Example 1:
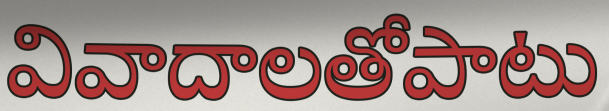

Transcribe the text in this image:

వివాదాలతోపాటు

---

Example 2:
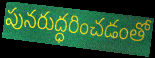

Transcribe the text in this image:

పునరుద్ధరించడంతో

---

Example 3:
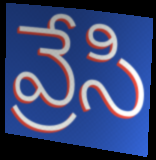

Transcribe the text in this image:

వ్రేసి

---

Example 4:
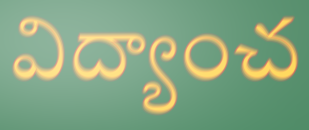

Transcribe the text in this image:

విద్యాంచ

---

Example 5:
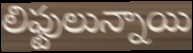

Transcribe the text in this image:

లిఫ్టులున్నాయి